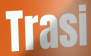
Trasi